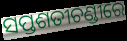
ସପ୍ତଶତୀଚଣ୍ଡୀରେ